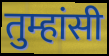
तुम्हांसी